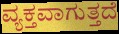
ವ್ಯಕ್ತವಾಗುತ್ತದೆ